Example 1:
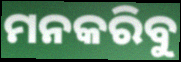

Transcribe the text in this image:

ମନକରିବୁ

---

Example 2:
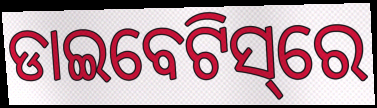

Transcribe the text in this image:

ଡାଇବେଟିସ୍‌ରେ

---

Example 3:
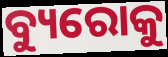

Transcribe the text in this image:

ବ୍ୟୁରୋକୁ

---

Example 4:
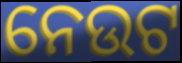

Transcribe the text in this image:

ନେଉଟ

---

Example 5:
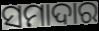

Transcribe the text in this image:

ସମାଦାର